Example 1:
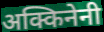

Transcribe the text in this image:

अक्किनेनी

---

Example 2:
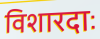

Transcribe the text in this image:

विशारदाः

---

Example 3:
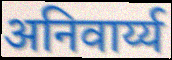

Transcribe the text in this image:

अनिवार्य्य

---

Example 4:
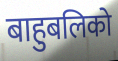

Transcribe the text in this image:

बाहुबलिको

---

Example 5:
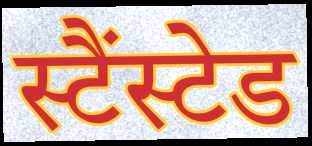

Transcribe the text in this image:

स्टैंस्टेड